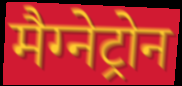
मैग्नेट्रोन